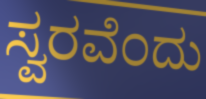
ಸ್ವರವೆಂದು